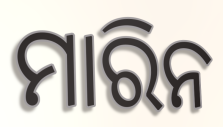
ମାରିନ